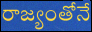
రాజ్యంతోనే